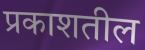
प्रकाशतील